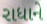
રાધાને